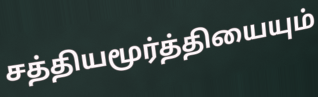
சத்தியமூர்த்தியையும்